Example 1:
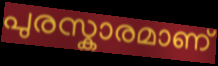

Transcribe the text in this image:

പുരസ്കാരമാണ്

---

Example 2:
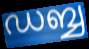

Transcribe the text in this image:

ഡബ്ബ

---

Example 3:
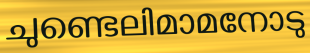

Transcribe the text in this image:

ചുണ്ടെലിമാമനോടു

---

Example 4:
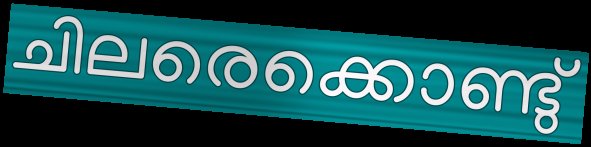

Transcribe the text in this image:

ചിലരെക്കൊണ്ടു്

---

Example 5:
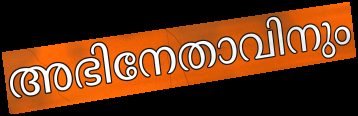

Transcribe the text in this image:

അഭിനേതാവിനും